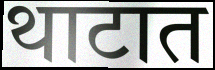
थाटात